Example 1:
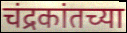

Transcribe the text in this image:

चंद्रकांतच्या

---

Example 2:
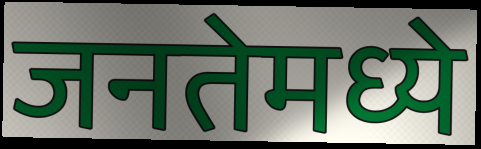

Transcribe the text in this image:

जनतेमध्ये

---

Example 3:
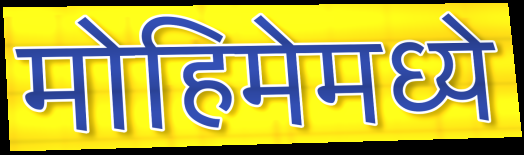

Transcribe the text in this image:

मोहिमेमध्ये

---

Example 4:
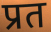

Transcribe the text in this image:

प्रत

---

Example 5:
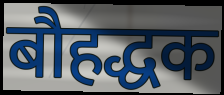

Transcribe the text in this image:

बौहद्धक